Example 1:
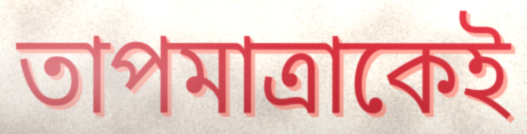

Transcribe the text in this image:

তাপমাত্রাকেই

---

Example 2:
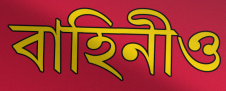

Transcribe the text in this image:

বাহিনীও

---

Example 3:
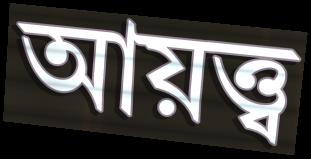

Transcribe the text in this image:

আয়ত্ত্ব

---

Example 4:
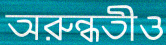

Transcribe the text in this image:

অরুন্ধতীও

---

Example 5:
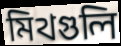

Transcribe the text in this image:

মিথগুলি